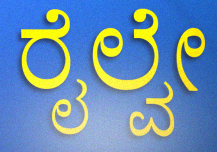
ರೈಲ್ವೇ